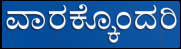
ವಾರಕ್ಕೊಂದರಿ